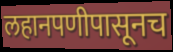
लहानपणीपासूनच